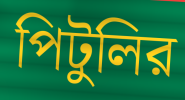
পিটুলির